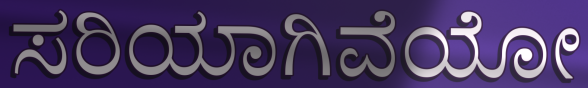
ಸರಿಯಾಗಿವೆಯೋ